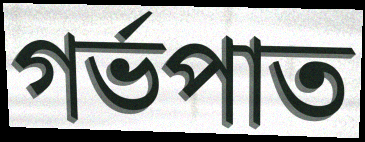
গৰ্ভপাত